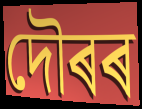
দৌৰৰ